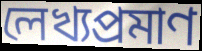
লেখ্যপ্রমাণ